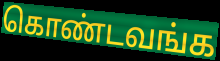
கொண்டவங்க